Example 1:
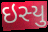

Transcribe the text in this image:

ઇસ્યુ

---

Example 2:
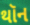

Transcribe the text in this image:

થૉન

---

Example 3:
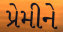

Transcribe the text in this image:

પ્રેમીને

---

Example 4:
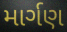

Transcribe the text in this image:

માર્ગણ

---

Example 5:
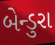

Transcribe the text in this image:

બેન્ડુરા